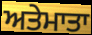
ਅਤੇਮਾਤਾ